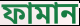
ফামান